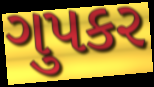
ગુપકર